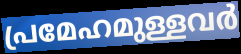
പ്രമേഹമുള്ളവർ